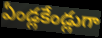
ఏండ్లకేండ్లుగా